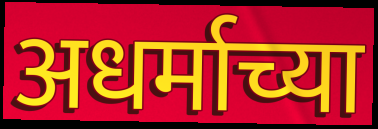
अधर्माच्या